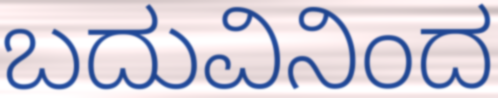
ಬದುವಿನಿಂದ